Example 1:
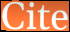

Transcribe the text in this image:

Cite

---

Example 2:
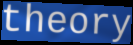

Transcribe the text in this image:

theory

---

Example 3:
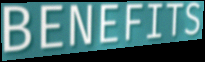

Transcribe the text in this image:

BENEFITS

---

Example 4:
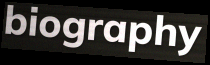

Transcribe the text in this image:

biography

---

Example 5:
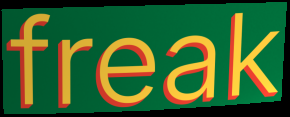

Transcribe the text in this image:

freak